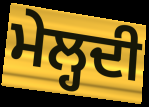
ਮੇਲ੍ਹਦੀ